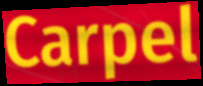
Carpel